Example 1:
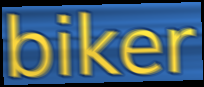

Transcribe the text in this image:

biker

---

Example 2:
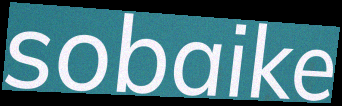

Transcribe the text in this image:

sobaike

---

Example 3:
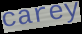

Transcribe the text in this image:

carey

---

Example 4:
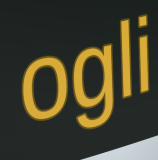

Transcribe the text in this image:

ogli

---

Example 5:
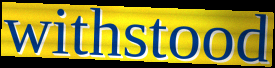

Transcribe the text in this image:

withstood